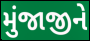
મુંજાજીને